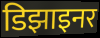
डिझाइनर